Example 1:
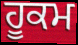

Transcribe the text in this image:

ਹੂਕਮ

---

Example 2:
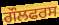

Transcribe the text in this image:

ਗੌਲਫਰਸ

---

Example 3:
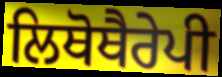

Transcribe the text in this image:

ਲਿਥੋਥੈਰੇਪੀ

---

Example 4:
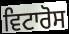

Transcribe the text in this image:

ਵਿਟਾਰੋਸ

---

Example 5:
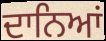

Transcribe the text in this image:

ਦਾਨਿਆਂ